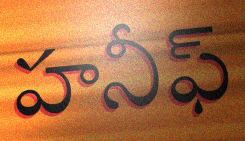
హనీఫ్